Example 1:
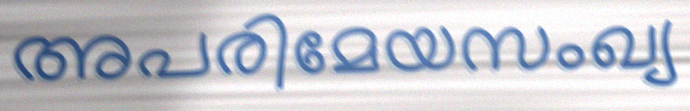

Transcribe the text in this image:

അപരിമേയസംഖ്യ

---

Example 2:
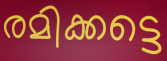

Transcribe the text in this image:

രമിക്കട്ടെ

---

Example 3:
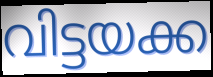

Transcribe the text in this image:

വിട്ടയക്ക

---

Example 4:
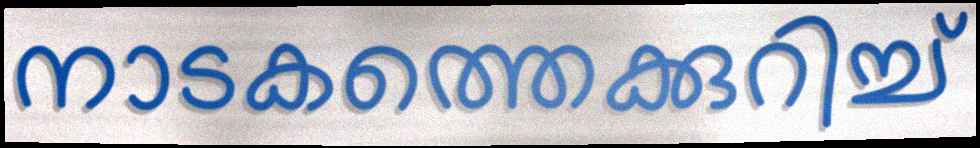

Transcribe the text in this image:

നാടകത്തെക്കുറിച്ച്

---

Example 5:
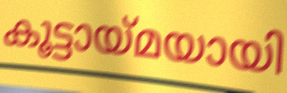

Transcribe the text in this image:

കൂട്ടായ്മയായി